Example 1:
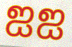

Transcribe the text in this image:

ஐஐ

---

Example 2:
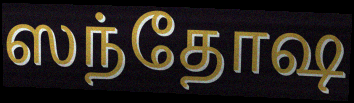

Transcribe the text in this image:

ஸந்தோஷ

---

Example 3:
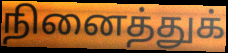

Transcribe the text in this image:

நினைத்துக்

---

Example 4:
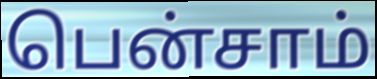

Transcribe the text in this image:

பென்சாம்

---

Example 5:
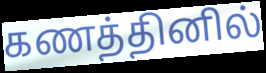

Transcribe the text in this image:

கணத்தினில்